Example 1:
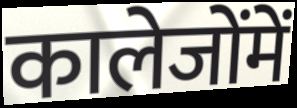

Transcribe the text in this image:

कालेजोंमें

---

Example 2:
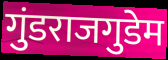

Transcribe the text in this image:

गुंडराजगुडेम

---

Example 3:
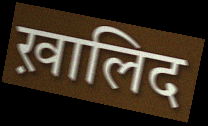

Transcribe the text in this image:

ख़ालिद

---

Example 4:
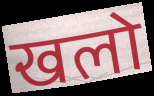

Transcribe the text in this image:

खलो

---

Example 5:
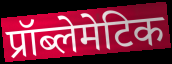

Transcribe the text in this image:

प्रॉब्लेमेटिक